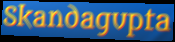
Skandagupta